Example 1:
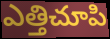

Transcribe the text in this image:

ఎత్తిచూపి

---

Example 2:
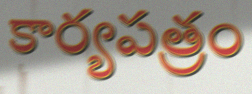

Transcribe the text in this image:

కార్యపత్రం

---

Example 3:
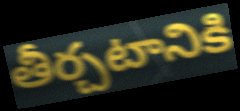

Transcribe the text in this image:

తీర్చటానికి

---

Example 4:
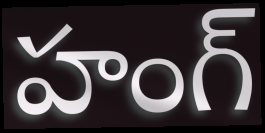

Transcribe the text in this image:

హంగ్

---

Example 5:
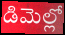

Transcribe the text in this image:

డిమెల్లో